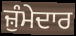
ਜ਼ੁੰਮੇਦਾਰ